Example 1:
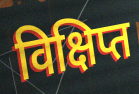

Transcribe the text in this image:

विक्षिप्त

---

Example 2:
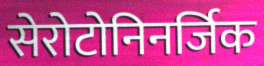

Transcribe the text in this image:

सेरोटोनिनर्जिक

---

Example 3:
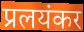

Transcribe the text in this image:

प्रलयंकर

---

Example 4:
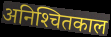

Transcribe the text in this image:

अनिश्‍चितकाल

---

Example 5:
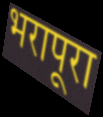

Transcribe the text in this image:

भरापूरा